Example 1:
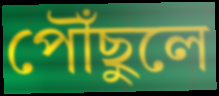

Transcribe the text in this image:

পৌঁছুলে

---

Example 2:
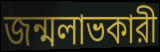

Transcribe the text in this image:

জন্মলাভকারী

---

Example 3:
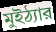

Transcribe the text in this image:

মুইঠ্যার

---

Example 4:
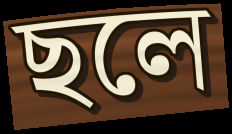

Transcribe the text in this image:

ছলে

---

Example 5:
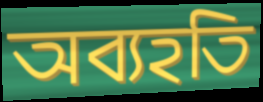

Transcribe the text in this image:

অব্যহতি